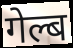
गेल्ब